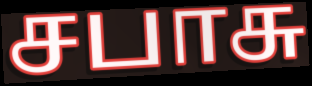
சபாசு